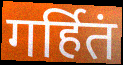
गर्हितं